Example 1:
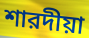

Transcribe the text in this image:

শারদীয়া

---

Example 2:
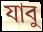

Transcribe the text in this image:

যাবু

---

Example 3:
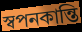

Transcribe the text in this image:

স্বপনকান্তি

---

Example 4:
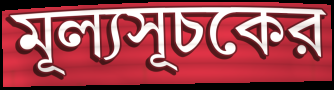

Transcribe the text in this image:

মূল্যসূচকের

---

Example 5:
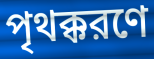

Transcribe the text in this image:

পৃথক্করণে